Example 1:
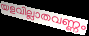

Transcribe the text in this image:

യളവില്ലാതവണ്ണം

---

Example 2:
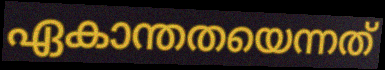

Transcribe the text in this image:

ഏകാന്തതയെന്നത്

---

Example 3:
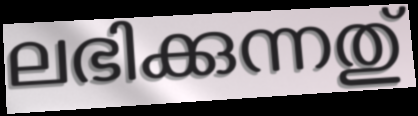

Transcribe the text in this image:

ലഭിക്കുന്നതു്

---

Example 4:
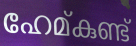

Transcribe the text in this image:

ഹേമ്കുണ്ട്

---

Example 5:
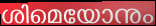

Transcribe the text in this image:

ശിമെയോനും